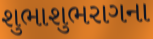
શુભાશુભરાગના